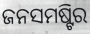
ଜନସମଷ୍ଟିର